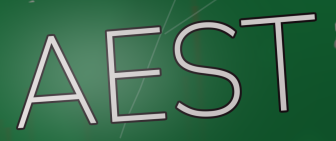
AEST